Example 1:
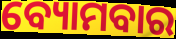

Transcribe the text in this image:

ବ୍ୟୋମବାର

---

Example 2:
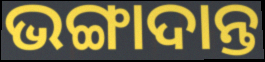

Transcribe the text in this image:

ଭଙ୍ଗାଦାନ୍ତ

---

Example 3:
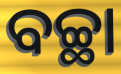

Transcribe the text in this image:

ବଚ୍ଛା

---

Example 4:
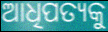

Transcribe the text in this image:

ଆଧିପତ୍ୟକୁ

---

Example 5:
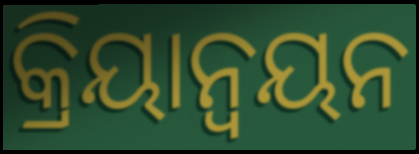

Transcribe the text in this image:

କ୍ରିୟାନ୍ଵୟନ